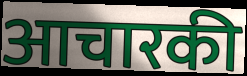
आचारकी